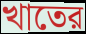
খাতের